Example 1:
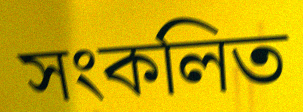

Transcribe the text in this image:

সংকলিত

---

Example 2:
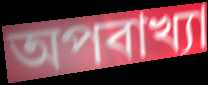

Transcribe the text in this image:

অপবাখ্যা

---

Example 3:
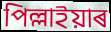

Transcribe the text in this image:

পিল্লাইয়াৰ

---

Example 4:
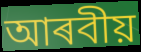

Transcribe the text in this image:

আৰবীয়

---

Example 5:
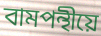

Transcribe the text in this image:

বামপন্থীয়ে